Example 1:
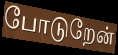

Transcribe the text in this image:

போடுறேன்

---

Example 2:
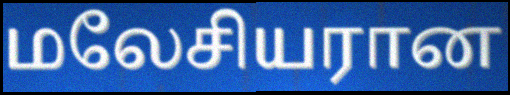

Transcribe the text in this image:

மலேசியரான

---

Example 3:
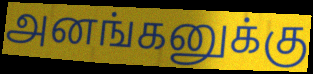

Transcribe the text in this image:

அனங்கனுக்கு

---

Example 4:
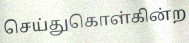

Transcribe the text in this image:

செய்துகொள்கின்ற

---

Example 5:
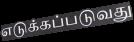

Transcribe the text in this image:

எடுக்கப்படுவது